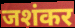
जशंकर